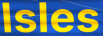
Isles